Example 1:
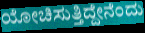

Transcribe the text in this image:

ಯೋಚಿಸುತ್ತಿದ್ದೇನೆಂದು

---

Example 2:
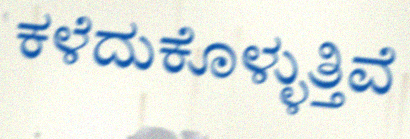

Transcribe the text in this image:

ಕಳೆದುಕೊಳ್ಳುತ್ತಿವೆ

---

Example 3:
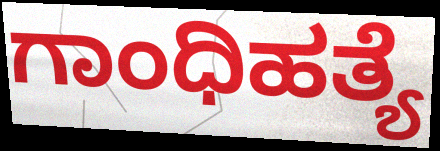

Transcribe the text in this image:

ಗಾಂಧಿಹತ್ಯೆ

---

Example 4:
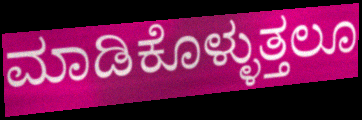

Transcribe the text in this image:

ಮಾಡಿಕೊಳ್ಳುತ್ತಲೂ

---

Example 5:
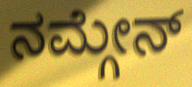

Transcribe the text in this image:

ನಮ್ಗೇನ್